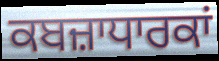
ਕਬਜ਼ਾਧਾਰਕਾਂ